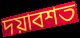
দয়াবশত